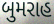
બુમરાહ